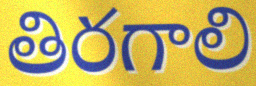
తిరగాలి